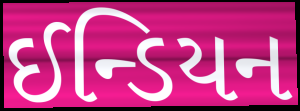
ઈન્ડિયન